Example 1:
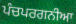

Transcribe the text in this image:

ਪੰਚਪਰਗਨੀਆ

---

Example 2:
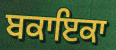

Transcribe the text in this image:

ਬਕਾਇਕਾ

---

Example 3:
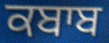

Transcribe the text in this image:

ਕਬਾਬ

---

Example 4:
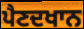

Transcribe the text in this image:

ਪੈਣਦਖਾਨ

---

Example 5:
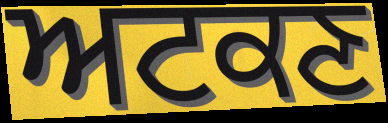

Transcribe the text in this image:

ਅਟਕਣ